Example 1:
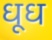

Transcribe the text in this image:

धूध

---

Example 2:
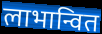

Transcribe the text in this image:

लाभान्वित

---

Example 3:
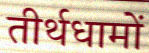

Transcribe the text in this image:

तीर्थधामों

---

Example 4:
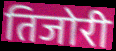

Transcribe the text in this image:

तिजोरी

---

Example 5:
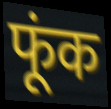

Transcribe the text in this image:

फूंक